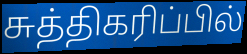
சுத்திகரிப்பில்